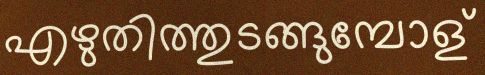
എഴുതിത്തുടങ്ങുമ്പോള്